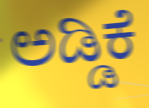
ಅಡ್ಡಿಕೆ